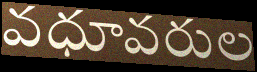
వధూవరుల